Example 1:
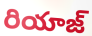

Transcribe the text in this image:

రియాజ్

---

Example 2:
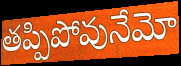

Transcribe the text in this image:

తప్పిపోవునేమో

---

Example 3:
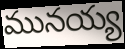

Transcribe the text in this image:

మునయ్య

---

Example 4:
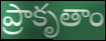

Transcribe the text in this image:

ప్రాకృతాం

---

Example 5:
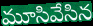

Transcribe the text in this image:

మూసివేసిన